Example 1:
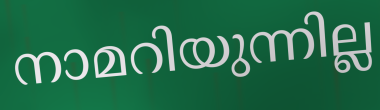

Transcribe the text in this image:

നാമറിയുന്നില്ല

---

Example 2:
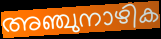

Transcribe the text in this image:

അഞ്ചുനാഴിക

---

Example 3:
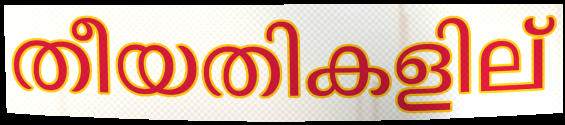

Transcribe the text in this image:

തീയതികളില്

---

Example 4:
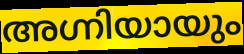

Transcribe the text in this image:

അഗ്നിയായും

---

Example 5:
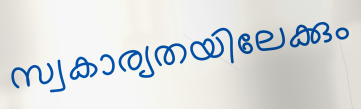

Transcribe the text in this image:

സ്വകാര്യതയിലേക്കും